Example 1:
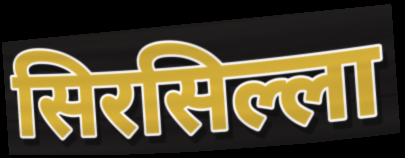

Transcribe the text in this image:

सिरसिल्ला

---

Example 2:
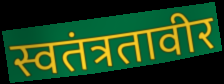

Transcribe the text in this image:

स्वतंत्रतावीर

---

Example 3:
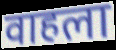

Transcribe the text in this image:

वाहला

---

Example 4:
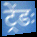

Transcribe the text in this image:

ट्रेंडः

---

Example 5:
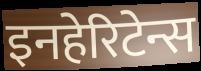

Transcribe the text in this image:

इनहेरिटेन्स